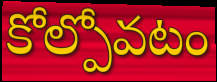
కోల్పోవటం